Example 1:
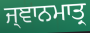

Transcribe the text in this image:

ਜ੍ਞਾਨਮਾਤ੍ਰ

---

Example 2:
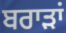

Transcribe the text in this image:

ਬਰਾੜਾਂ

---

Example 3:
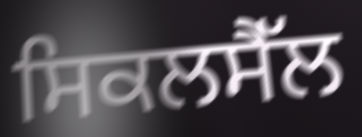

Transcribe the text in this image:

ਸਿਕਲਸੈੱਲ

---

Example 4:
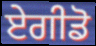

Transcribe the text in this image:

ਏਗੀਡੋ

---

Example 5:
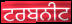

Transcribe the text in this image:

ਟਰਬਨੀਟ